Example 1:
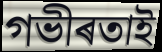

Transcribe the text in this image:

গভীৰতাই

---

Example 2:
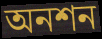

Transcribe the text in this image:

অনশন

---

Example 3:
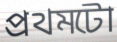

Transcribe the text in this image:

প্ৰথমটো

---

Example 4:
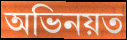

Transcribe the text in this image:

অভিনয়ত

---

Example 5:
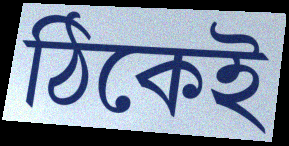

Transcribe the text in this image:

ঠিকেই